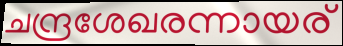
ചന്ദ്രശേഖരന്നായര്